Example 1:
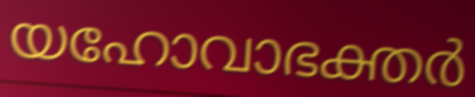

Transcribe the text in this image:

യഹോവാഭക്തർ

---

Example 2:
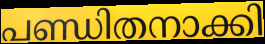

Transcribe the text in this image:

പണ്ഡിതനാക്കി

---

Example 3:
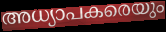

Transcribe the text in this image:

അധ്യാപകരെയും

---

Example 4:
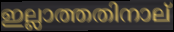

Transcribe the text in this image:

ഇല്ലാത്തതിനാല്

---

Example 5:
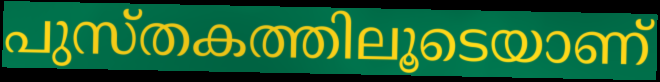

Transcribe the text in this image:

പുസ്തകത്തിലൂടെയാണ്